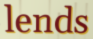
lends